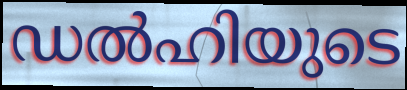
ഡൽഹിയുടെ